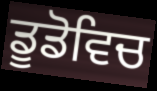
ਡੂਡੋਵਿਚ